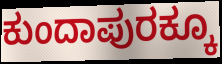
ಕುಂದಾಪುರಕ್ಕೂ